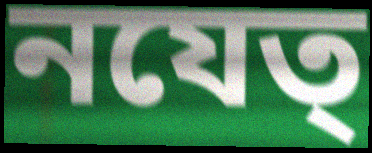
নযেত্